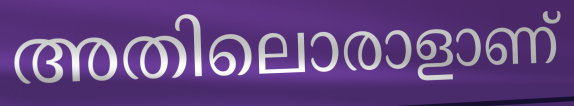
അതിലൊരാളാണ്